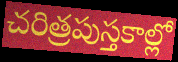
చరిత్రపుస్తకాల్లో